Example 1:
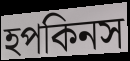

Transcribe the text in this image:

হপকিনস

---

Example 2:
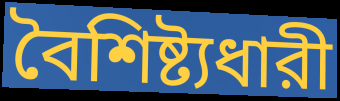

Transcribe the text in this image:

বৈশিষ্ট্যধারী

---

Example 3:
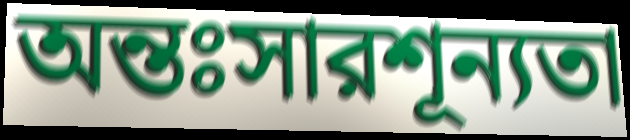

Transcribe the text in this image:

অন্তঃসারশূন্যতা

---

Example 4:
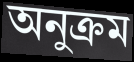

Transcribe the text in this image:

অনুক্রম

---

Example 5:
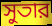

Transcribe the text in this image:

সুতার